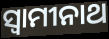
ସ୍ୱାମୀନାଥ